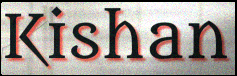
Kishan